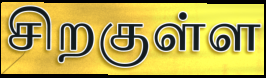
சிறகுள்ள